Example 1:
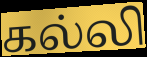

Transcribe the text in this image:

கல்லி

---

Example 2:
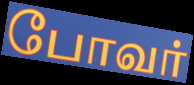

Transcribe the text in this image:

போவர்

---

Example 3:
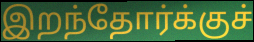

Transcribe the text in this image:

இறந்தோர்க்குச்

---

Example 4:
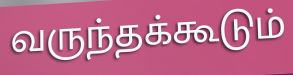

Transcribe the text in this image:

வருந்தக்கூடும்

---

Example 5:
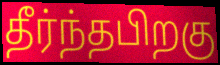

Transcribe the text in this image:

தீர்ந்தபிறகு